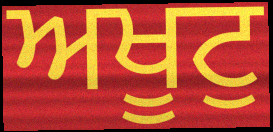
ਅਖੂਟੁ